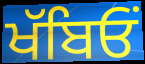
ਖੱਬਿਓਂ